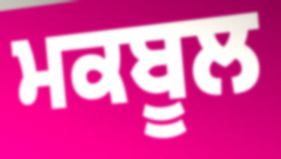
ਮਕਬੂਲ